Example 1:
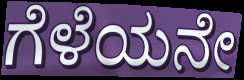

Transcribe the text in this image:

ಗೆಳೆಯನೇ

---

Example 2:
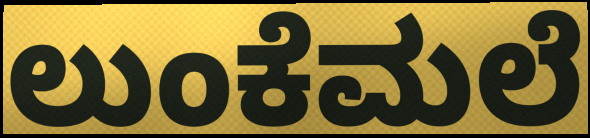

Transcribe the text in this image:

ಲುಂಕೆಮಲೆ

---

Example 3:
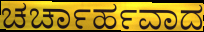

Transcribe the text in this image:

ಚರ್ಚಾರ್ಹವಾದ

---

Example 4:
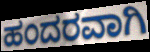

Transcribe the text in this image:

ಹಂದರವಾಗಿ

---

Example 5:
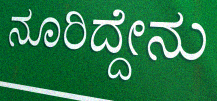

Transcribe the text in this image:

ನೂರಿದ್ದೇನು